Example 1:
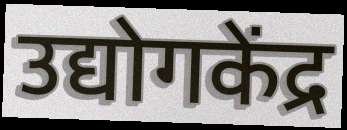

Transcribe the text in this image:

उद्योगकेंद्र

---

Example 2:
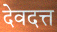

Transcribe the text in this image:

देवदत्त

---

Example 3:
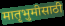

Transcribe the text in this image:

मातृभुमीसाठी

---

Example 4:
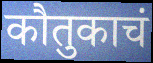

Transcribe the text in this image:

कौतुकाचं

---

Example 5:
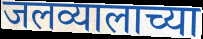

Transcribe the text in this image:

जलव्यालाच्या